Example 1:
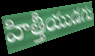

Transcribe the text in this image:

హిత్తీయుడగు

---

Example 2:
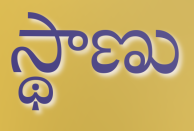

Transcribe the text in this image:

స్థాణు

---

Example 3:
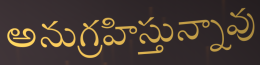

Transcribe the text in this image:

అనుగ్రహిస్తున్నావు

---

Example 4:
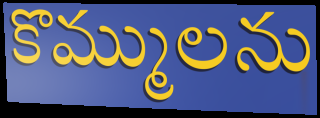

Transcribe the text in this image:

కొమ్ములను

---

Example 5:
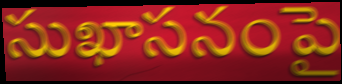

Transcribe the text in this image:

సుఖాసనంపై